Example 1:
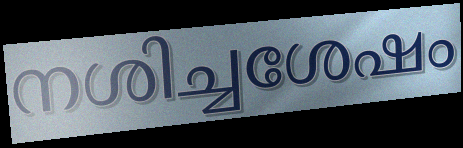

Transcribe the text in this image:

നശിച്ചശേഷം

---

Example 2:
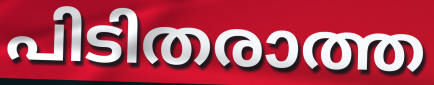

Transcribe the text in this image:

പിടിതരാത്ത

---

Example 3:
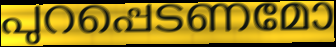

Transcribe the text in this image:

പുറപ്പെടണമോ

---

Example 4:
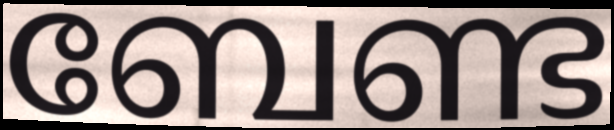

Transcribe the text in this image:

ബേണ്ട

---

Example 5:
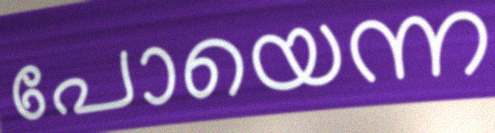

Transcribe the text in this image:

പോയെന്ന